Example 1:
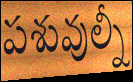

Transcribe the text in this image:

పశువుల్నీ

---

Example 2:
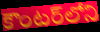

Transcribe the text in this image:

కౌంటర్‌లోని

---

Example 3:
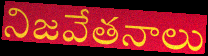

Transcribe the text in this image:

నిజవేతనాలు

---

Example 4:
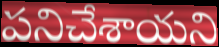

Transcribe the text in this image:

పనిచేశాయని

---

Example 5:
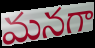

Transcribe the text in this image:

మనగా